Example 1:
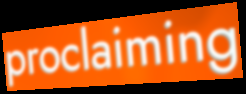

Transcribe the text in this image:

proclaiming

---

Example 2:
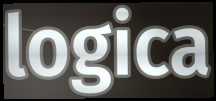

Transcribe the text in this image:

logica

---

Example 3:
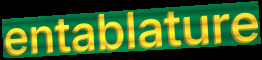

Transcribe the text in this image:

entablature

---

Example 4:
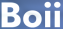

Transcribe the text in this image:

Boii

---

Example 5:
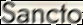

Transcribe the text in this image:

Sancto